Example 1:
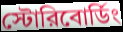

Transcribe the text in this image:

স্টোরিবোর্ডিং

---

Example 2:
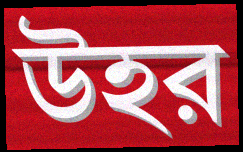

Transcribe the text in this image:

উহর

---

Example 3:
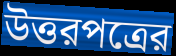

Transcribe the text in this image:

উত্তরপত্রের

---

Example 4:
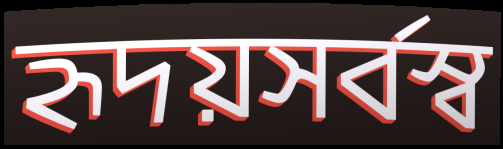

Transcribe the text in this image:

হৃদয়সর্বস্ব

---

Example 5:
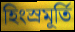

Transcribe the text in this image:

হিংস্রমূর্তি